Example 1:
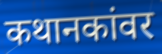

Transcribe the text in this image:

कथानकांवर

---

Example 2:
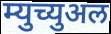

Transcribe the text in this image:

म्युच्युअल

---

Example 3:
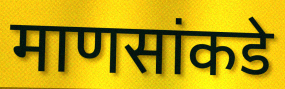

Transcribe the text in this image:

माणसांकडे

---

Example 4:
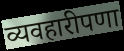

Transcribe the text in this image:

व्यवहारीपणा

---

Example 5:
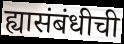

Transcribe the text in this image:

ह्यासंबंधीची